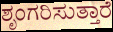
ಶೃಂಗರಿಸುತ್ತಾರೆ